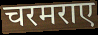
चरमराए